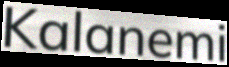
Kalanemi